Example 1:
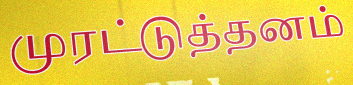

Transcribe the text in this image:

முரட்டுத்தனம்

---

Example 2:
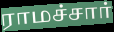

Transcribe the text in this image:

ராமச்சார்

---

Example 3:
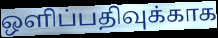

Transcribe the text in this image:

ஒளிப்பதிவுக்காக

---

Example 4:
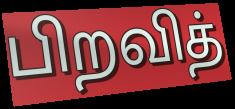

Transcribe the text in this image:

பிறவித்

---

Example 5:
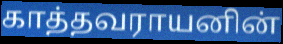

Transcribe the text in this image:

காத்தவராயனின்